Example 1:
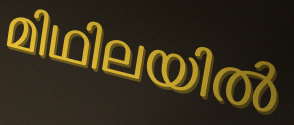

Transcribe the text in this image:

മിഥിലയിൽ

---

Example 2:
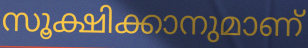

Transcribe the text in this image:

സൂക്ഷിക്കാനുമാണ്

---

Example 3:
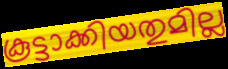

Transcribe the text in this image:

കൂട്ടാക്കിയതുമില്ല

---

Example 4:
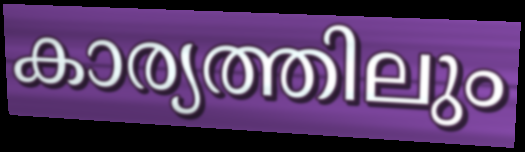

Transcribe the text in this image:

കാര്യത്തിലും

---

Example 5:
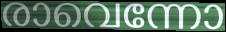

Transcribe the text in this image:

രാവെന്നോ